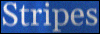
Stripes